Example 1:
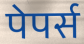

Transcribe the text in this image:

पेपर्स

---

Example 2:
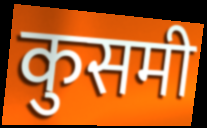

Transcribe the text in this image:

कुसमी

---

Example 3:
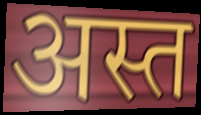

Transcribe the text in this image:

अस्त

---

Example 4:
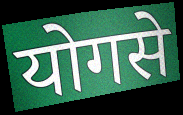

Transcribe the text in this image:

योगसे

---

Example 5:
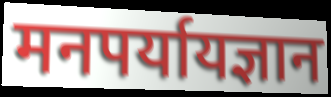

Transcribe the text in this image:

मनपर्यायज्ञान